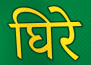
घिरे